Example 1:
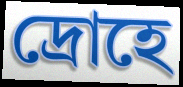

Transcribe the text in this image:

দ্রোহে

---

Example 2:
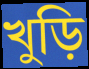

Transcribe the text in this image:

খুড়ি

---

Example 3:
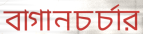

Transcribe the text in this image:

বাগানচর্চার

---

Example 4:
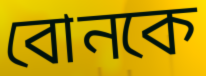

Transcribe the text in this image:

বোনকে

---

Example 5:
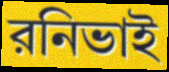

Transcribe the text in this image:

রনিভাই